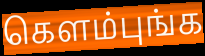
கெளம்புங்க